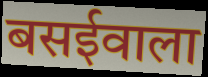
बसईवाला